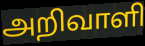
அறிவாளி